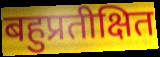
बहुप्रतीक्षित